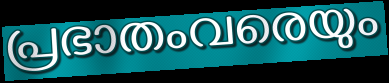
പ്രഭാതംവരെയും